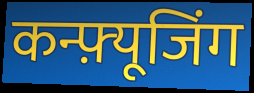
कन्फ़्यूजिंग